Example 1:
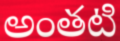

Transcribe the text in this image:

అంతటి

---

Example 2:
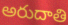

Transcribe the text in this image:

అరుదాతి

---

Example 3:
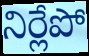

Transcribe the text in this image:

నిర్లేపో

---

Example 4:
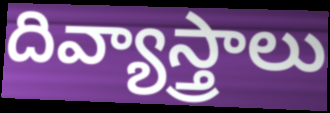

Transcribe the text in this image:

దివ్యాస్త్రాలు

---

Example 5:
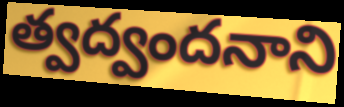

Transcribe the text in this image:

త్వద్వందనాని